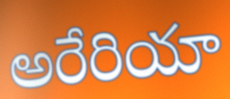
అరేరియా